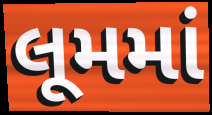
લૂમમાં